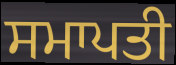
ਸਮਾਪਤੀ